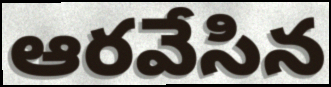
ఆరవేసిన